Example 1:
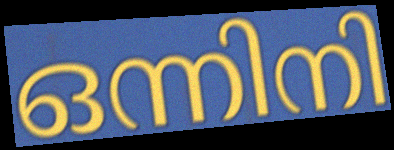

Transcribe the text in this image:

ഒന്നിനി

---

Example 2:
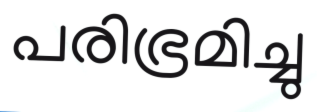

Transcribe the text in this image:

പരിഭ്രമിച്ചു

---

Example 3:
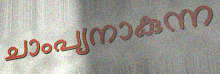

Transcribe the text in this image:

ചാംപ്യനാകുന്ന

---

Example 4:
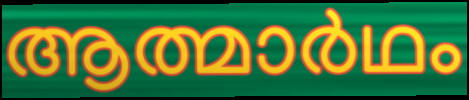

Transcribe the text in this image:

ആത്മാർഥം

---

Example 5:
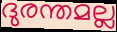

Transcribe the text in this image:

ദുരന്തമല്ല